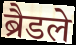
ब्रैडले